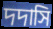
দদাসি